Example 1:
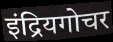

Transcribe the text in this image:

इंद्रियगोचर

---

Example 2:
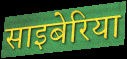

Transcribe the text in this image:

साइबेरिया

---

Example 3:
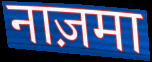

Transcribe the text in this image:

नाज़मा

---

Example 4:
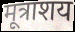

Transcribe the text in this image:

मूत्राशय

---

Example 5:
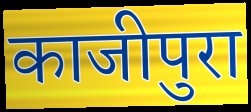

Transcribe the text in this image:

काजीपुरा